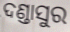
ଦଣ୍ଡାସୁର